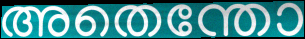
അതെന്തോ